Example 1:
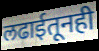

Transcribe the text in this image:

लढाईतूनही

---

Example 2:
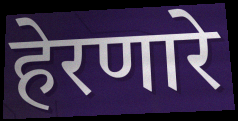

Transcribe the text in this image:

हेरणारे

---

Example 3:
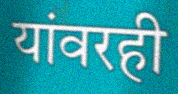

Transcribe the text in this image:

यांवरही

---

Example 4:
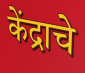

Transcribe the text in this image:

केंद्राचे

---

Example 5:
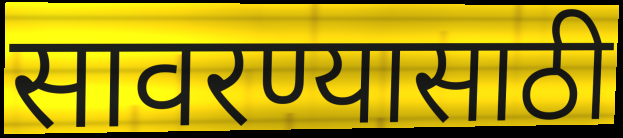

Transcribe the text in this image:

सावरण्यासाठी